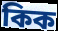
কিক